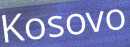
Kosovo